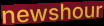
newshour